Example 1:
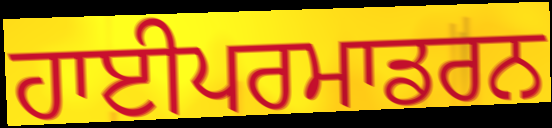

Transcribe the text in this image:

ਹਾਈਪਰਮਾਡਰਨ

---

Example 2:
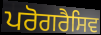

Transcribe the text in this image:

ਪਰੋਗਰੈਸਿਵ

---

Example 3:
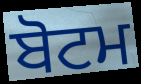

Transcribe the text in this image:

ਬੋਟਮ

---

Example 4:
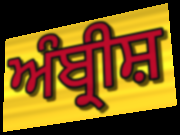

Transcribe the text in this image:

ਅੰਬ੍ਰੀਸ਼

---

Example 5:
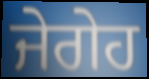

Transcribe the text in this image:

ਜੇਗੇਹ